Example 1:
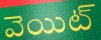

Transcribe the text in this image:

వెయిట్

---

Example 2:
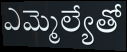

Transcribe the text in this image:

ఎమ్మెల్యేతో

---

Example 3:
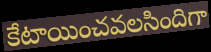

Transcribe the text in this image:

కేటాయించవలసిందిగా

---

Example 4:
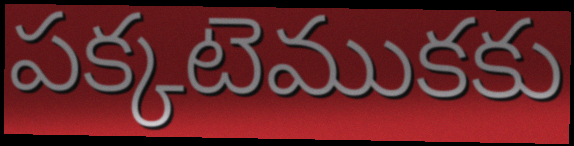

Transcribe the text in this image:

పక్కటెముకకు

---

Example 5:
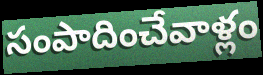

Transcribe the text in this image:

సంపాదించేవాళ్లం